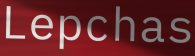
Lepchas